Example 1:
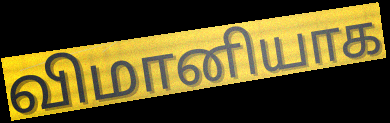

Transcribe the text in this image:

விமானியாக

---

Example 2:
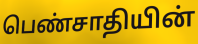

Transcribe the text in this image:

பெண்சாதியின்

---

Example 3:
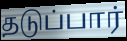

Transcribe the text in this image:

தடுப்பார்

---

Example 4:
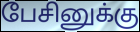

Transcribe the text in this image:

பேசினுக்கு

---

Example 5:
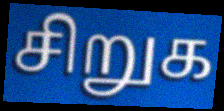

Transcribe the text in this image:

சிறுக